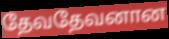
தேவதேவனான